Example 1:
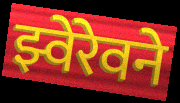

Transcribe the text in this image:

झ्वेरेवने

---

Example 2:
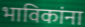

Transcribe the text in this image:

भाविकांना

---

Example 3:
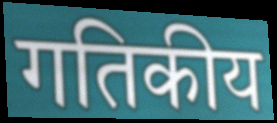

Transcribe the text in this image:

गतिकीय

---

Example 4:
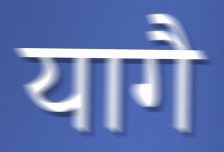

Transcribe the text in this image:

यागै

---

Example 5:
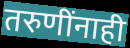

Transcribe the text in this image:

तरुणींनाही